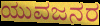
ಯುವಜನರ